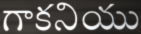
గాకనియు